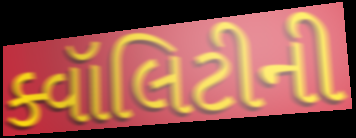
ક્વૉલિટીની